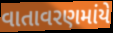
વાતાવરણમાંયે